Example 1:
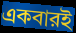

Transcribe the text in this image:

একবারই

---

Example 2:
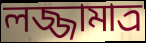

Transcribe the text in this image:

লজ্জামাত্র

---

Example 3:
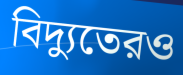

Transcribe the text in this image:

বিদ্যুতেরও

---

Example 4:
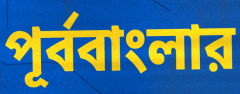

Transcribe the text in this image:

পূর্ববাংলার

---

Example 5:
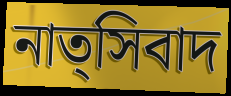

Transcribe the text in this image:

নাত্সিবাদ